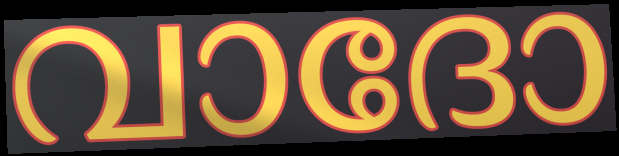
വാദോ